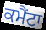
ਕਮੈਂਟਾ